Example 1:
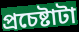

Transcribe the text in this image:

প্রচেষ্টাটা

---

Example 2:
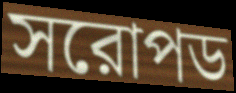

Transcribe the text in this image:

সরোপড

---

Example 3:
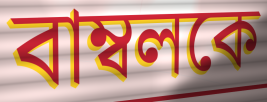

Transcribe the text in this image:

বাম্বলকে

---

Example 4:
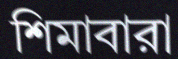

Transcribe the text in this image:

শিমাবারা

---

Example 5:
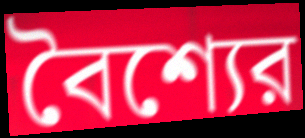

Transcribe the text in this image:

বৈশ্যের